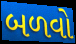
બળવો